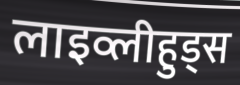
लाइव्लीहुड्स